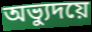
অভ্যুদয়ে